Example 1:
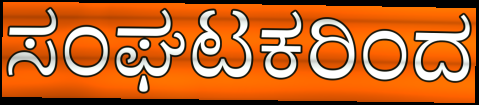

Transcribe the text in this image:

ಸಂಘಟಕರಿಂದ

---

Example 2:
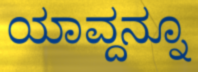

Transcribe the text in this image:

ಯಾವ್ದನ್ನೂ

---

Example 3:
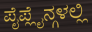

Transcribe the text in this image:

ಪೈಪ್ಲೈನ್ಗಳಲ್ಲಿ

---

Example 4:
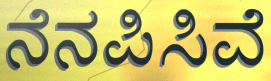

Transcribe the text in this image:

ನೆನಪಿಸಿವೆ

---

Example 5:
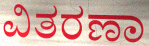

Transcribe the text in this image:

ವಿತರಣಾ